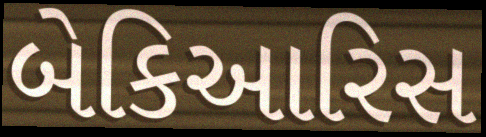
બેકિઆરિસ